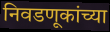
निवडणूकांच्या